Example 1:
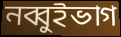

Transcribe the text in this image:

নব্বুইভাগ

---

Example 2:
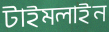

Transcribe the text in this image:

টাইমলাইন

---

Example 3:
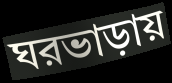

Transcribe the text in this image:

ঘরভাড়ায়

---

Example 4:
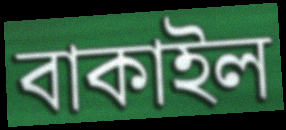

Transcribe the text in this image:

বাকাইল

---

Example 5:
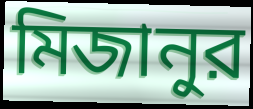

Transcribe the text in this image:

মিজানুর